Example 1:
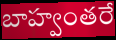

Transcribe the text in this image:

బాహ్వంతరే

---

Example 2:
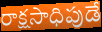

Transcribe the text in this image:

రాక్షసాధిపుడే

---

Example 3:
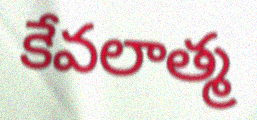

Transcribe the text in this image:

కేవలాత్మ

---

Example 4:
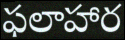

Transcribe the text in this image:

ఫలాహార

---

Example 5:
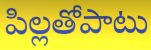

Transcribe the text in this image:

పిల్లతోపాటు